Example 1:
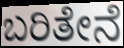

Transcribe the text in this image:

ಬರಿತೇನೆ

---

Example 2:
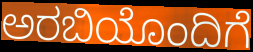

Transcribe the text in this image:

ಅರಬಿಯೊಂದಿಗೆ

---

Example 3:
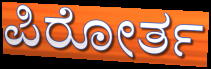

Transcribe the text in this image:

ಪಿರೋರ್ತ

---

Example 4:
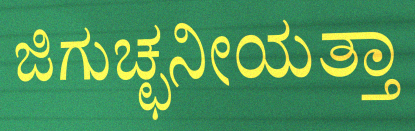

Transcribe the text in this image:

ಜಿಗುಚ್ಛನೀಯತ್ತಾ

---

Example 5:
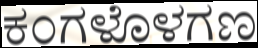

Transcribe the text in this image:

ಕಂಗಳೊಳಗಣ